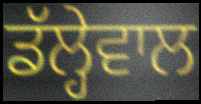
ਡੱਲ੍ਹੇਵਾਲ